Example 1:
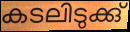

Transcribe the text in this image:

കടലിടുക്കു്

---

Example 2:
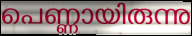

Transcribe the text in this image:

പെണ്ണായിരുന്നു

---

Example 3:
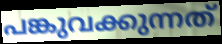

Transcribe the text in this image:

പങ്കുവക്കുന്നത്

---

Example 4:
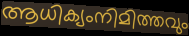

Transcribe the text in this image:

ആധിക്യംനിമിത്തവും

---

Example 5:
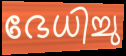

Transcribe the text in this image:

ഭേധിച്ചു